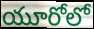
యూరోలో